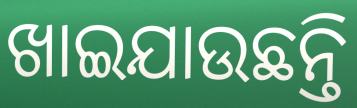
ଖାଇଯାଉଛନ୍ତି